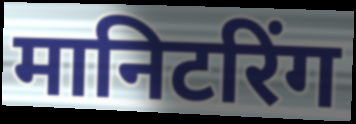
मानिटरिंग